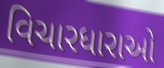
વિચારધારાઓ